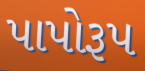
પાપોરૂપ